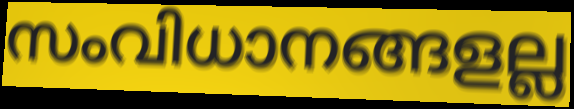
സംവിധാനങ്ങളല്ല